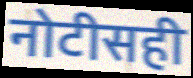
नोटीसही